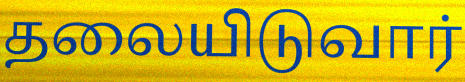
தலையிடுவார்